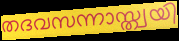
തദവസന്നാസ്ത്വയി